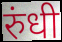
रुंधी